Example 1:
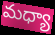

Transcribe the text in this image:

మధ్యా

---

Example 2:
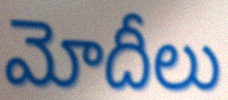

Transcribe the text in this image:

మోదీలు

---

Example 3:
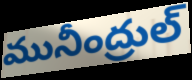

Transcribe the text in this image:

మునీంద్రుల్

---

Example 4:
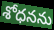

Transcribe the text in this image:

శోధనను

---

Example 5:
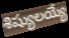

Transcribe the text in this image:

శిష్యులయ్యే